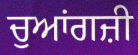
ਚੁਆਂਗਜ਼ੀ